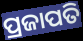
ପ୍ରଜାପତି